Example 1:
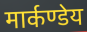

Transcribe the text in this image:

मार्कण्डेय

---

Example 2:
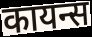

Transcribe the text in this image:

कायन्स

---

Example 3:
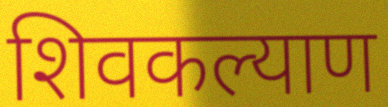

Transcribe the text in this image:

शिवकल्याण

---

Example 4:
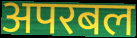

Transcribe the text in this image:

अपरबल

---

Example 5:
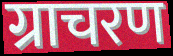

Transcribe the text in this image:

ग्राचरण